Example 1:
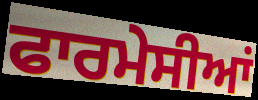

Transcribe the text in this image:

ਫਾਰਮੇਸੀਆਂ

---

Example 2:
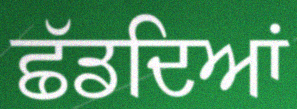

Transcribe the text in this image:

ਛੱਡਦਿਆਂ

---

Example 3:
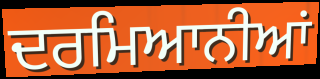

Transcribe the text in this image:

ਦਰਮਿਆਨੀਆਂ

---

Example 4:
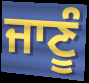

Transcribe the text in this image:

ਜਾਣੂੰ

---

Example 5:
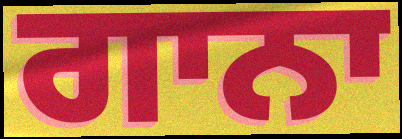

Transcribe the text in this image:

ਗਾਨਾ